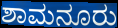
ಶಾಮನೂರು